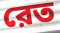
রেত